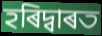
হৰিদ্বাৰত